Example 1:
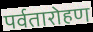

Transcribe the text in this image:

पर्वतारोहण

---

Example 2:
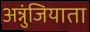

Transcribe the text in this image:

अन्नुंजियाता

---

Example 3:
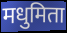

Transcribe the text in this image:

मधुमिता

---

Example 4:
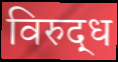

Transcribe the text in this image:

विरुद्ध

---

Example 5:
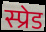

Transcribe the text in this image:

स्प्रेड